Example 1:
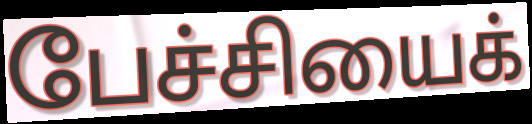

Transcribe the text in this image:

பேச்சியைக்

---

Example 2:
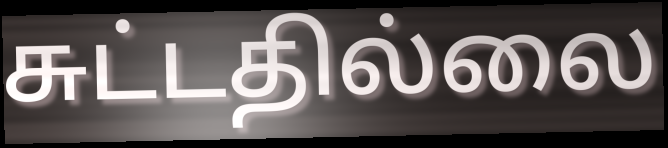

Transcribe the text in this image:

சுட்டதில்லை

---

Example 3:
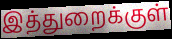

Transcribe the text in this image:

இத்துறைக்குள்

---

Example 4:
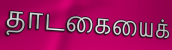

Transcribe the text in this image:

தாடகையைக்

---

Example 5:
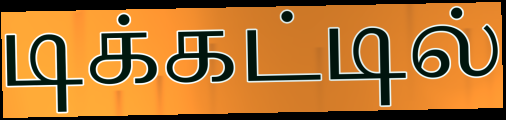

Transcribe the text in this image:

டிக்கட்டில்